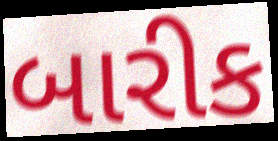
બારીક